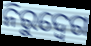
ନିରୁଦ୍ବେଗ